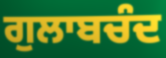
ਗੁਲਾਬਚੰਦ